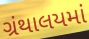
ગ્રંથાલયમાં